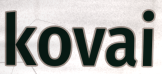
kovai